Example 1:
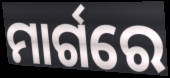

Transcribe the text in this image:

ମାର୍ଗରେ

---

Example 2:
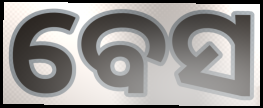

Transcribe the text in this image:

ବେସ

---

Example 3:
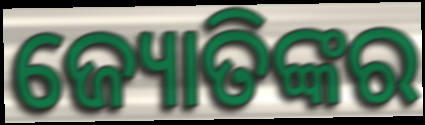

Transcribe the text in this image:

ଜ୍ୟୋତିଙ୍କର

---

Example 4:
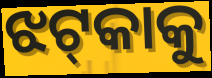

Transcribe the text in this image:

ଝଟ୍‌କାକୁ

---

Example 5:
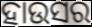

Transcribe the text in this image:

ହାଉସର